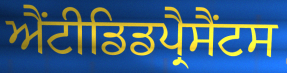
ਐਂਟੀਡਿਡਪ੍ਰੈਸੈਂਟਸ